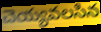
చెయ్యవలసిన